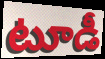
టూడీ